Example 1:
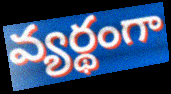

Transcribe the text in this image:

వ్యర్థంగా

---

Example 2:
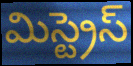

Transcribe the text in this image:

మిస్ట్రెస్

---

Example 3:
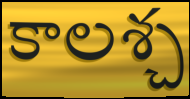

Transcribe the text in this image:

కాలశ్చ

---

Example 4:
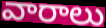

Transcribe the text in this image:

వారాలు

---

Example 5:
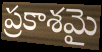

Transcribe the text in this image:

ప్రకాశమై